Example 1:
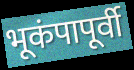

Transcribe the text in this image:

भूकंपापूर्वी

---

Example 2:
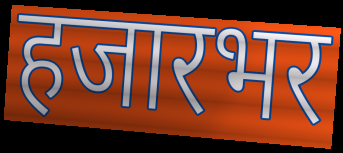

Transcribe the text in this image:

हजारभर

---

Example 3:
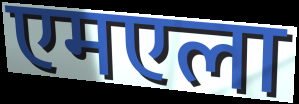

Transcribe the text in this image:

एमएला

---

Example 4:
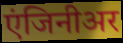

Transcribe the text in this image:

एंजिनीअर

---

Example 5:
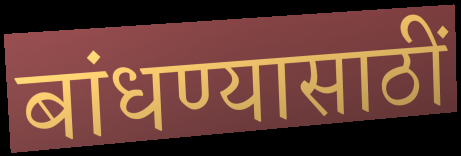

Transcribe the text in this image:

बांधण्यासाठीं